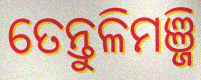
ତେନ୍ତୁଳିମଞ୍ଜି